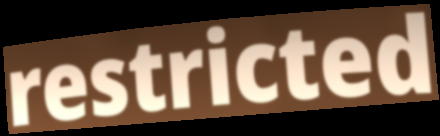
restricted